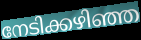
നേടിക്കഴിഞ്ഞ